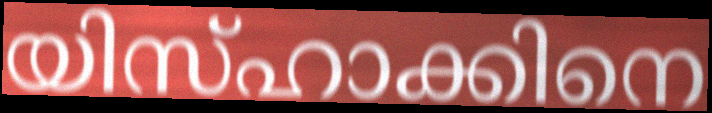
യിസ്ഹാക്കിനെ